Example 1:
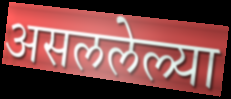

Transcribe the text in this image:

असललेल्या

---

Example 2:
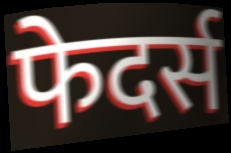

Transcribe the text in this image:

फेदर्स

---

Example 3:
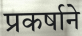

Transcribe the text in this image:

प्रकर्षाने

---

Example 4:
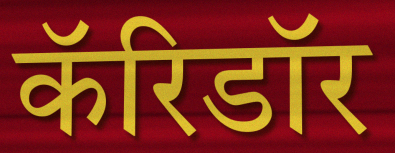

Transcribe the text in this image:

कॅरिडॉर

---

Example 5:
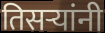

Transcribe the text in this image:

तिसऱ्यांनी